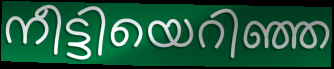
നീട്ടിയെറിഞ്ഞ